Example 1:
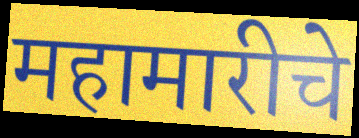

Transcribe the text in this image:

महामारीचे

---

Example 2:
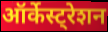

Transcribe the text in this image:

ऑर्केस्ट्रेशन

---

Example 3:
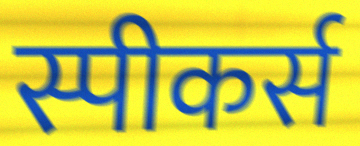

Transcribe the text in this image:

स्पीकर्स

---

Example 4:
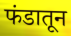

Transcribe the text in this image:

फंडातून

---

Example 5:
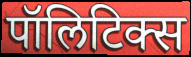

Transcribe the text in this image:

पॉलिटिक्स